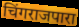
चिंगराजपारा